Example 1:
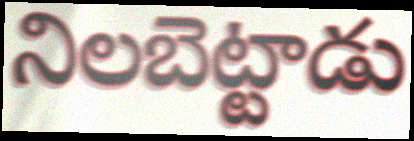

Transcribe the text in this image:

నిలబెట్టాడు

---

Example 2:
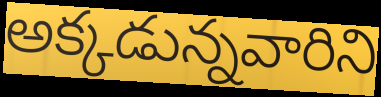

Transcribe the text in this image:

అక్కడున్నవారిని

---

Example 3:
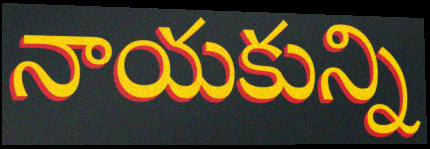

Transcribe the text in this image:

నాయకున్ని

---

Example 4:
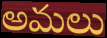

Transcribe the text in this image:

అమలు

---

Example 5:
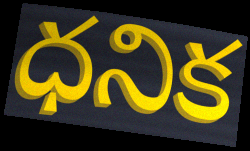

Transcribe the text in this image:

ధనిక